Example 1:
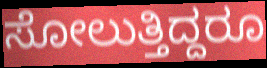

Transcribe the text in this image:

ಸೋಲುತ್ತಿದ್ದರೂ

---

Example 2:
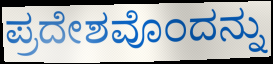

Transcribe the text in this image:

ಪ್ರದೇಶವೊಂದನ್ನು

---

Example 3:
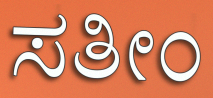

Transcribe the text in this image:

ಸತೀಂ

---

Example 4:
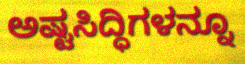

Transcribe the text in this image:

ಅಷ್ಟಸಿದ್ಧಿಗಳನ್ನೂ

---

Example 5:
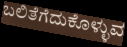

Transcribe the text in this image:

ಬಲಿತೆಗೆದುಕೊಳ್ಳುವ